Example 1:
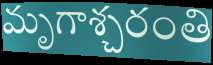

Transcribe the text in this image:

మృగాశ్చరంతి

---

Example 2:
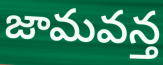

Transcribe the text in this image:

జామవన్త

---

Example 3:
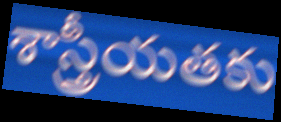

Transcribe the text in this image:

శాస్త్రీయతకు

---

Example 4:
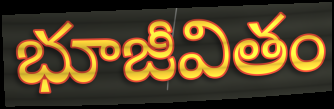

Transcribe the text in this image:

భూజీవితం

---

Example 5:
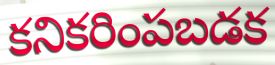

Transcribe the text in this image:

కనికరింపబడక